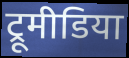
ट्रूमीडिया